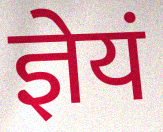
ज्ञेयं